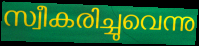
സ്വീകരിച്ചുവെന്നു